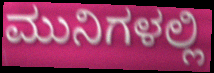
ಮುನಿಗಳಲ್ಲಿ